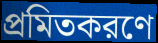
প্রমিতকরণে